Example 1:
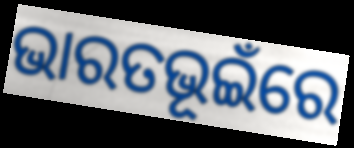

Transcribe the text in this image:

ଭାରତଭୂଇଁରେ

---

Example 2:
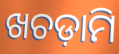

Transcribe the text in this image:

ଖଚଡ଼ାମି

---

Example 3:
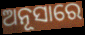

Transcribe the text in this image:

ଅନୂସାରେ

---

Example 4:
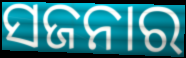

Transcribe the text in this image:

ସଜନାର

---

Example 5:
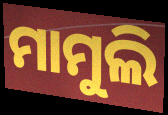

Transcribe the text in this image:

ମାମୁଲି